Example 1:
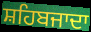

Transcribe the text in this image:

ਸ਼ਹਿਬਜਾਦਾ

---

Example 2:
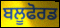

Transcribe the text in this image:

ਬਲੂਫੋਰਡ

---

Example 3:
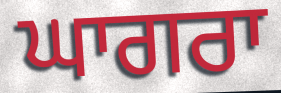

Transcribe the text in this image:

ਘਾਗਰਾ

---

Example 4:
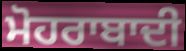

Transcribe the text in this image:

ਮੋਹਰਾਬਾਦੀ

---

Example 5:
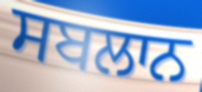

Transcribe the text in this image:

ਸਬਲਾਨ